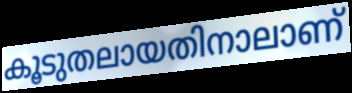
കൂടുതലായതിനാലാണ്